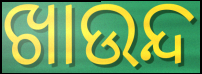
ଖାଉନ୍ଦ